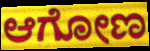
ಆಗೋಣ